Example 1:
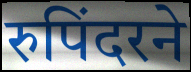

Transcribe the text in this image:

रुपिंदरने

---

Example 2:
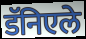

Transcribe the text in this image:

डॅनिएले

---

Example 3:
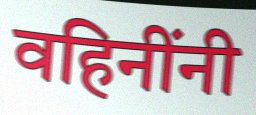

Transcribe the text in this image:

वहिनींनी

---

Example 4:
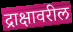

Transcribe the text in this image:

द्राक्षावरील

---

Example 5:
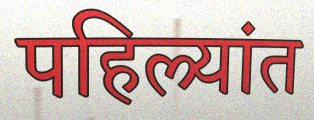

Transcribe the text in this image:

पहिल्यांत